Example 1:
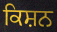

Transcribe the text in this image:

ਕਿਸ਼ਨ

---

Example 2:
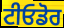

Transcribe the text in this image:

ਟੀਓਡੋਰ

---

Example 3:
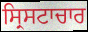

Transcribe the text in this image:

ਸ੍ਰਿਸਟਾਚਾਰ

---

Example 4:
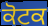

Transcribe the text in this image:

ਕੋਟਕ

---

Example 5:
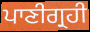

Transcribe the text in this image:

ਪਾਣੀਗ੍ਰਹੀ